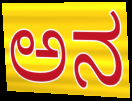
ಅನ